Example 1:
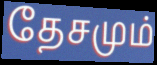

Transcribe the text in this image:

தேசமும்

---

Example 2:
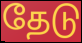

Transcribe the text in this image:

தேடு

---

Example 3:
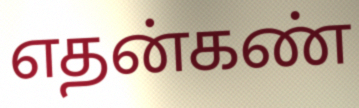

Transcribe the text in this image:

எதன்கண்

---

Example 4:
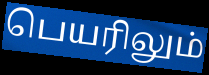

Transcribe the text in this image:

பெயரிலும்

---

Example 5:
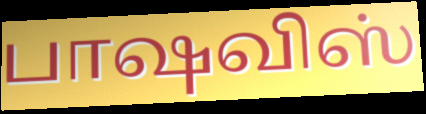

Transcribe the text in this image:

பாஷவிஸ்